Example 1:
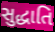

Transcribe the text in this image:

સુદ્ધાતિ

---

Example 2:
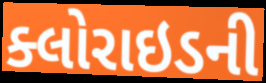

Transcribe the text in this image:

ક્લોરાઇડની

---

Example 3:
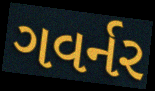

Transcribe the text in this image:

ગવર્નર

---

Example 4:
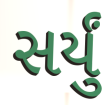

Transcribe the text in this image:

સર્યું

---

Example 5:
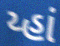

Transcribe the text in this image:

ય્હાં